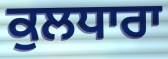
ਕੁਲਧਾਰਾ